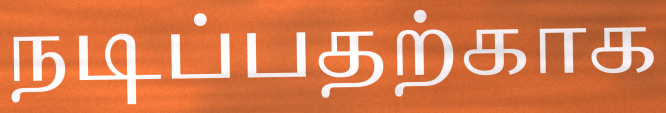
நடிப்பதற்காக